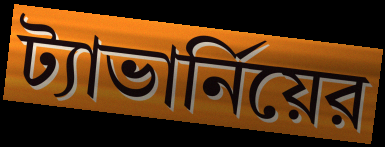
ট্যাভার্নিয়ের